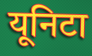
यूनिटा